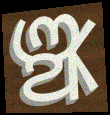
ଞ୍ଝ